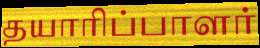
தயாரிப்பாளர்